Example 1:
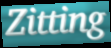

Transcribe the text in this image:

Zitting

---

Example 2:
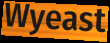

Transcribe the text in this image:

Wyeast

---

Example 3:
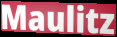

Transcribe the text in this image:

Maulitz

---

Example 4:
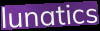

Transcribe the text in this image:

lunatics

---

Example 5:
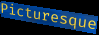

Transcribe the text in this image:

Picturesque